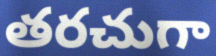
తరచుగా